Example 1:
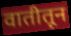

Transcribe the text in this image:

वातीतून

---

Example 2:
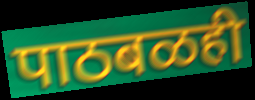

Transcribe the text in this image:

पाठबळही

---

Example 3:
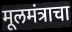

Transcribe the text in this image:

मूलमंत्राचा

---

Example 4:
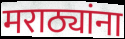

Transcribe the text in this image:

मराठ्यांना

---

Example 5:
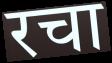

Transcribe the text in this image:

रचा